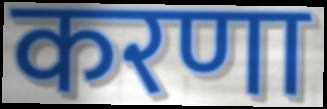
करणा